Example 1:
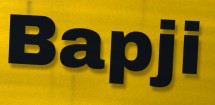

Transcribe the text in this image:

Bapji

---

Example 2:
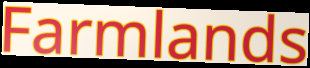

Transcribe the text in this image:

Farmlands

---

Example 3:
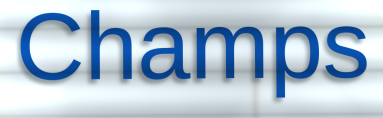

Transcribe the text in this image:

Champs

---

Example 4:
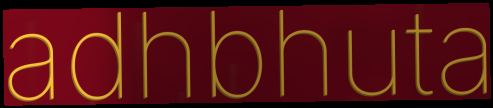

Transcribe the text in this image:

adhbhuta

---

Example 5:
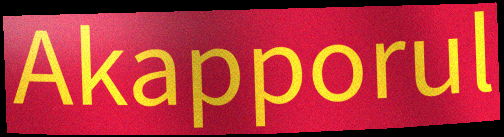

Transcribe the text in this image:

Akapporul